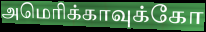
அமெரிக்காவுக்கோ